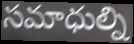
సమాధుల్ని